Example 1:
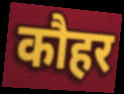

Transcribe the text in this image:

कौहर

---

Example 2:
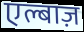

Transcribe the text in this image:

एल्बाज़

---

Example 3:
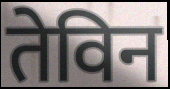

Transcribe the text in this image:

तेविन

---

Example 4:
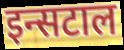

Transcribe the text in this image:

इन्सटाल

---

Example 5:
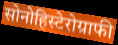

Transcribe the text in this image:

सोनोहिस्टेरोग्राफी